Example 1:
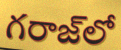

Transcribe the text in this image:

గరాజ్‌లో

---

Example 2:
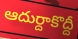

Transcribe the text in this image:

ఆదుర్దాకొద్దీ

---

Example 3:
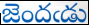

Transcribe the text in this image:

జెందఁడు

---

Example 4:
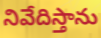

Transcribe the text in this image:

నివేదిస్తాను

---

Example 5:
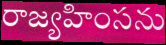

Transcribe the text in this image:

రాజ్యహింసను